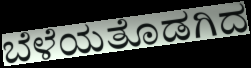
ಬೆಳೆಯತೊಡಗಿದ